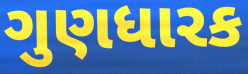
ગુણધારક